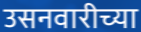
उसनवारीच्या